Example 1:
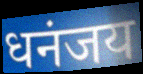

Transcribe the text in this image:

धनंजय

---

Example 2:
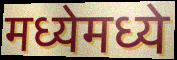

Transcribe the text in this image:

मध्येमध्ये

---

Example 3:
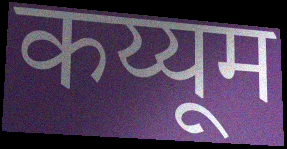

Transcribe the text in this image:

कय्यूम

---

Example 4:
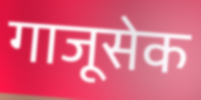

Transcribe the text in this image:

गाजूसेक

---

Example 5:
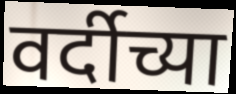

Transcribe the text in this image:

वर्दीच्या